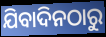
ଯିବାଦିନଠାରୁ